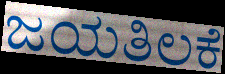
ಜಯತಿಲಕೆ